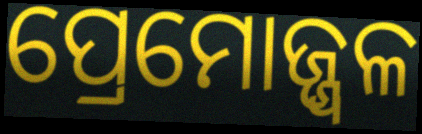
ପ୍ରେମୋଜ୍ଜ୍ୱଳ